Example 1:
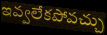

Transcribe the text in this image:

ఇవ్వలేకపోవచ్చు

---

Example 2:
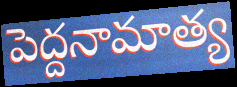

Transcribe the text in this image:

పెద్దనామాత్య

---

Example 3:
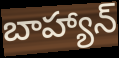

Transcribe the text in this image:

బాహ్యాన్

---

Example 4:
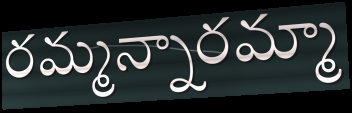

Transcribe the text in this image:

రమ్మన్నారమ్మా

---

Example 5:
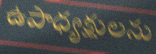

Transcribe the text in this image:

ఉపాధ్యక్షులను